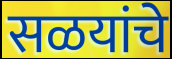
सळयांचे